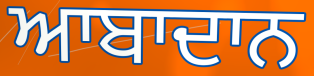
ਆਬਾਦਾਨ